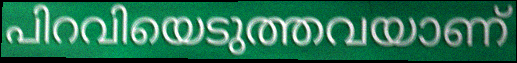
പിറവിയെടുത്തവയാണ്